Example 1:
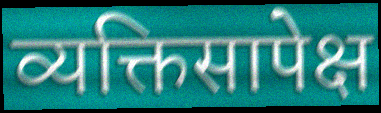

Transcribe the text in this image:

व्यक्तिसापेक्ष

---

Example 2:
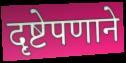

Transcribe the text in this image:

दृष्टेपणाने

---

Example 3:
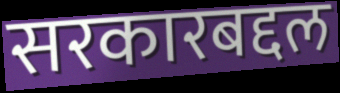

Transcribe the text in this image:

सरकारबद्दल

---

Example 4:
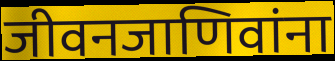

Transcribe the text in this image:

जीवनजाणिवांना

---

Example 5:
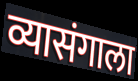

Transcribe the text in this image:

व्यासंगाला